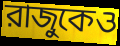
রাজুকেও